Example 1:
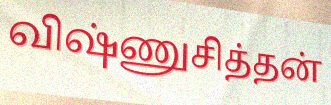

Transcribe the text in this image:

விஷ்ணுசித்தன்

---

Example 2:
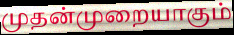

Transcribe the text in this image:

முதன்முறையாகும்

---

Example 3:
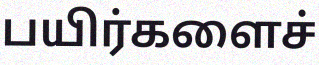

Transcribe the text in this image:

பயிர்களைச்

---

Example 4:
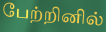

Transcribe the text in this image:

பேற்றினில்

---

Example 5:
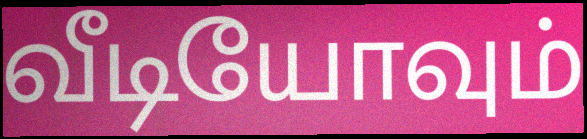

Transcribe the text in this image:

வீடியோவும்